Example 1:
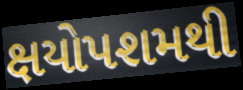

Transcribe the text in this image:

ક્ષયોપશમથી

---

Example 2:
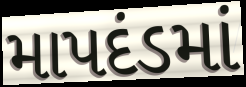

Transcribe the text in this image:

માપદંડમાં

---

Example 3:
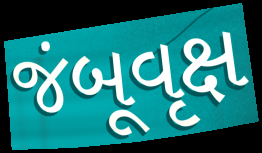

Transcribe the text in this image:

જંબૂવૃક્ષ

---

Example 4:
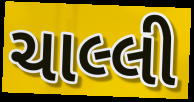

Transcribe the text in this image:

ચાલ્લી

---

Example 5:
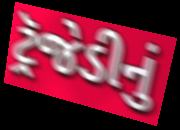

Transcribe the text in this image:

ટ્રૅજેડીનું